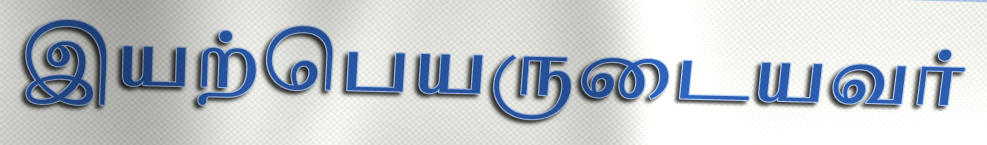
இயற்பெயருடையவர்